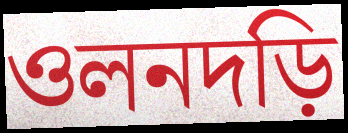
ওলনদড়ি